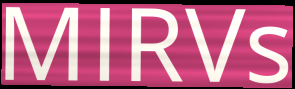
MIRVs